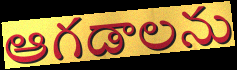
ఆగడాలను